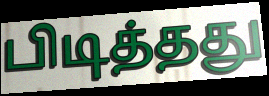
பிடித்தது